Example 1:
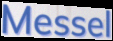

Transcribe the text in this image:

Messel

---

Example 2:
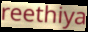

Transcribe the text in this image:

reethiya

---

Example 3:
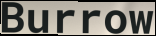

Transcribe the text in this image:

Burrow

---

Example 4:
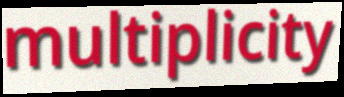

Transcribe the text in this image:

multiplicity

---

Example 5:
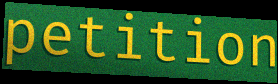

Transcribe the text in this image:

petition